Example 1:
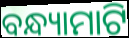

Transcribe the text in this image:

ବନ୍ଧ୍ୟାମାଟି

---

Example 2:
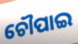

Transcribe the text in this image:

ଚୌପାଇ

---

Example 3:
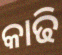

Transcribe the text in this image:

କାଢି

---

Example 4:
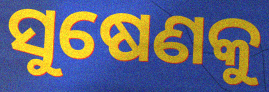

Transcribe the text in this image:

ସୁଷେଣକୁ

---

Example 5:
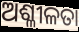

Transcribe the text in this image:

ଅଶ୍ଳୀଳତା